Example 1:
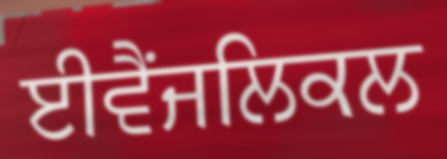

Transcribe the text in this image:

ਈਵੈਂਜਲਿਕਲ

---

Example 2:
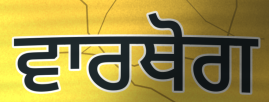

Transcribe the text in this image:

ਵਾਰਥੋਗ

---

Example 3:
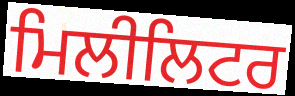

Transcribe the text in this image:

ਮਿਲੀਲਿਟਰ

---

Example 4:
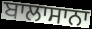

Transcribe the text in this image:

ਬਾਲਾਸਾਨਾ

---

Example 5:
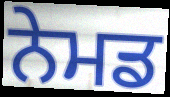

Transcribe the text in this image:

ਨੇਮਡ